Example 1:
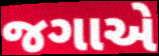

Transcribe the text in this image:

જગાએ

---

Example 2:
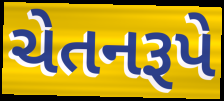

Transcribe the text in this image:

ચેતનરૂપે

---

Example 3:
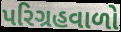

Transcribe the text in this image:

પરિગ્રહવાળો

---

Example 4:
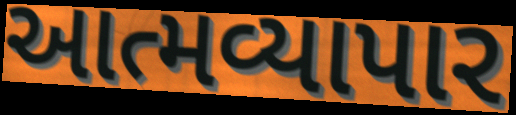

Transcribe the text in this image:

આત્મવ્યાપાર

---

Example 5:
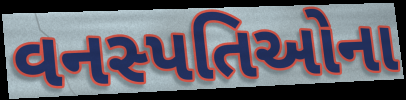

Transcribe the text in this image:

વનસ્પતિઓના